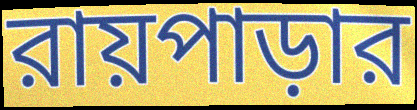
রায়পাড়ার